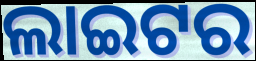
ଲାଇଟର